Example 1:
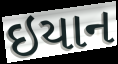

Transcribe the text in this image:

ઇયાન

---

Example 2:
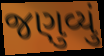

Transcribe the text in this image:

જણુવ્યું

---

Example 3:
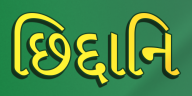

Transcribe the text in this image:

છિદ્દાનિ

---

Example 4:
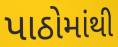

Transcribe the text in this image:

પાઠોમાંથી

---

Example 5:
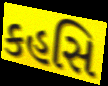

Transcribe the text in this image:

કહસિ